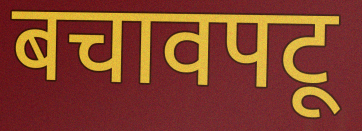
बचावपटू